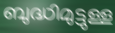
ബുദ്ധിമുട്ടുള്ള